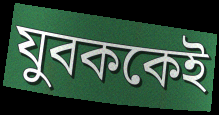
যুবককেই